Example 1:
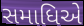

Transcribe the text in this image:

સમાધિએ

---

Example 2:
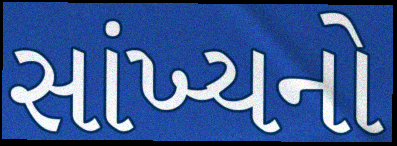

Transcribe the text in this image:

સાંખ્યનો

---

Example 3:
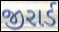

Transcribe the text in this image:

જીરાર્ડ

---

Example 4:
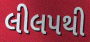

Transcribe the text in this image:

લીલપથી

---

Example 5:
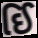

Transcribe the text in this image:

ઈિ